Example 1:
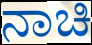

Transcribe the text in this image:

ನಾಚಿ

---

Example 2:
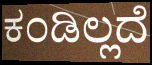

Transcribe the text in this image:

ಕಂಡಿಲ್ಲದೆ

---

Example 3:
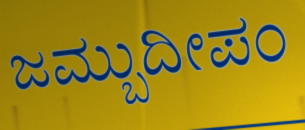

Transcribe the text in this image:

ಜಮ್ಬುದೀಪಂ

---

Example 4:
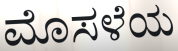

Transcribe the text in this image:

ಮೊಸಳೆಯ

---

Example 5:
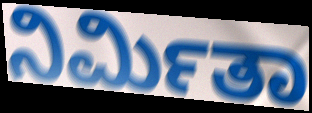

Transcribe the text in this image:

ನಿರ್ಮಿತಾ